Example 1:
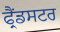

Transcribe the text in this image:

ਫ੍ਰੈਂਡਸਟਰ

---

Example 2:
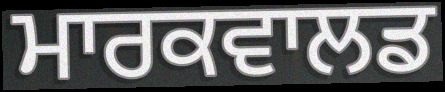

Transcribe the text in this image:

ਮਾਰਕਵਾਲਡ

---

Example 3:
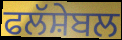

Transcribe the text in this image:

ਫਲੱਸ਼ੇਬਲ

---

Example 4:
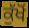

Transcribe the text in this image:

ਕੁੱਖੋਂ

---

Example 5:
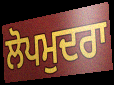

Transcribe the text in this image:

ਲੋਪਮੁਦਰਾ